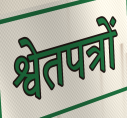
श्वेतपत्रों